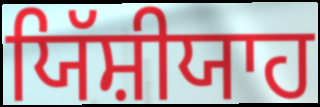
ਯਿੱਸ਼ੀਯਾਹ